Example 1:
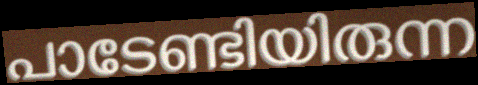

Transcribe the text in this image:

പാടേണ്ടിയിരുന്ന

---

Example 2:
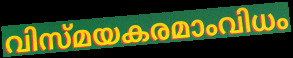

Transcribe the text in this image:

വിസ്മയകരമാംവിധം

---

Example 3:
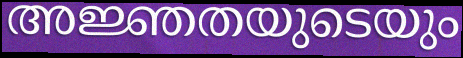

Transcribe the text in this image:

അജ്ഞതയുടെയും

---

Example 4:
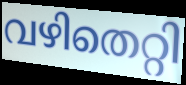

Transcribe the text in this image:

വഴിതെറ്റി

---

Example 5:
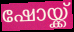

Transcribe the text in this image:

ഷോയ്ക്ക്